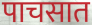
पाचसात